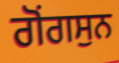
ਗੋਂਗਸੁਨ